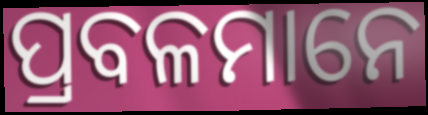
ପ୍ରବଳମାନେ